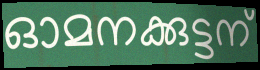
ഓമനക്കുട്ടന്